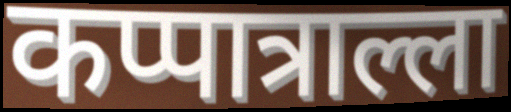
कप्पात्राल्ला